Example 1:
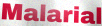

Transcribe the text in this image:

Malarial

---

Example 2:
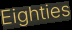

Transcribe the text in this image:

Eighties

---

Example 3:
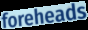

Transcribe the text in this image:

foreheads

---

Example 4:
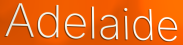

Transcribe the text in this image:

Adelaide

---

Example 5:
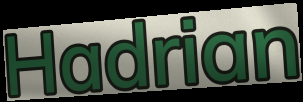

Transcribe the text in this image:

Hadrian